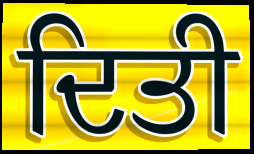
ਦਿਤੀ